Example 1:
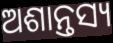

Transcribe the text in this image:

ଅଶାନ୍ତସ୍ୟ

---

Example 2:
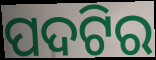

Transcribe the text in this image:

ପଦଟିର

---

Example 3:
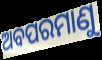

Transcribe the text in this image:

ଅବପରମାଣୁ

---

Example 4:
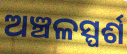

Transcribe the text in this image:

ଅଞ୍ଚଳସ୍ପର୍ଶ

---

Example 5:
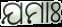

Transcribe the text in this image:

ଯମାଃ